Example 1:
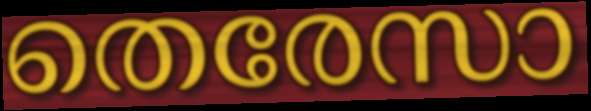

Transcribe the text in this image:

തെരേസാ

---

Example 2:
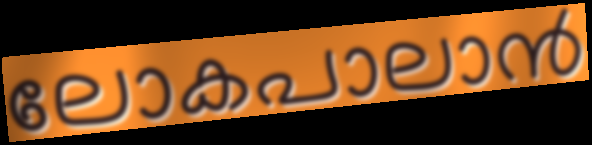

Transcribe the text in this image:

ലോകപാലാൻ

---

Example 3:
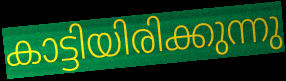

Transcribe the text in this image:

കാട്ടിയിരിക്കുന്നു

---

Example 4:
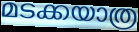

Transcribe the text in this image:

മടക്കയാത്ര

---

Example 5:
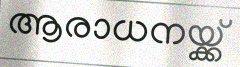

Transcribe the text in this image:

ആരാധനയ്ക്ക്